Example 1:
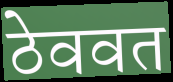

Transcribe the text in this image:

ठेववत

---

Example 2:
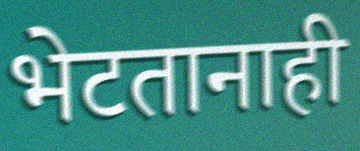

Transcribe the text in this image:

भेटतानाही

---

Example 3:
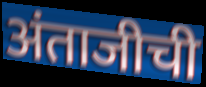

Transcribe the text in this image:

अंताजीची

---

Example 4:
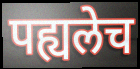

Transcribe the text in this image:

पह्यलेच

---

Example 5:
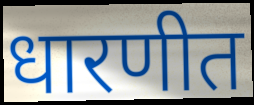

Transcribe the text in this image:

धारणीत